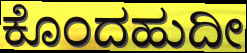
ಕೊಂದಹುದೀ